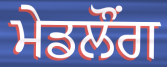
ਮੇਡਲੌਂਗ